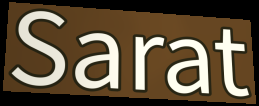
Sarat